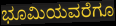
ಭೂಮಿಯವರೆಗೂ